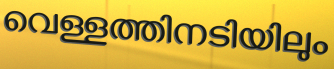
വെള്ളത്തിനടിയിലും